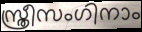
സ്ത്രീസംഗിനാം